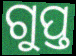
ଗୁପ୍ତ